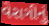
વેરાગીનું